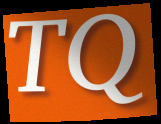
TQ